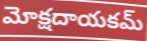
మోక్షదాయకమ్